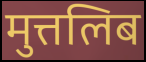
मुत्तलिब